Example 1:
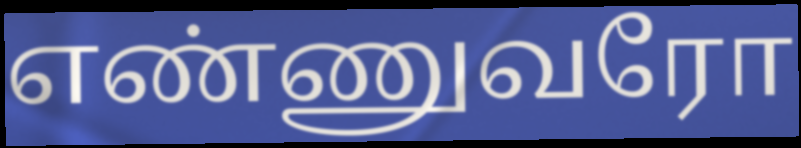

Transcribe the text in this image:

எண்ணுவரோ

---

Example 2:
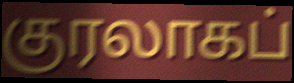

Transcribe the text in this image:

குரலாகப்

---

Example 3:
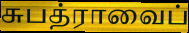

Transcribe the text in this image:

சுபத்ராவைப்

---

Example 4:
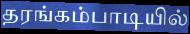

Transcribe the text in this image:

தரங்கம்பாடியில்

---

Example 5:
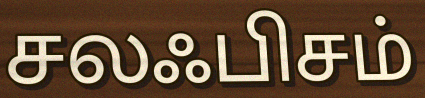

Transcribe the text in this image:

சலஃபிசம்